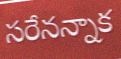
సరేనన్నాక